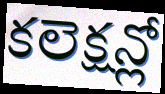
కలెక్షన్లో